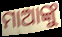
ମାଆଙ୍କୁ